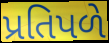
પ્રતિપળે